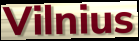
Vilnius